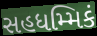
સહધમ્મિકં